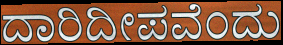
ದಾರಿದೀಪವೆಂದು